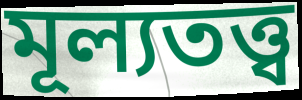
মূল্যতত্ত্ব